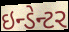
ઇન્ડેન્ટર